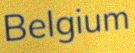
Belgium